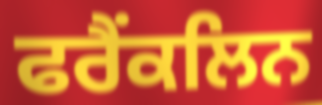
ਫਰੈਂਕਲਿਨ